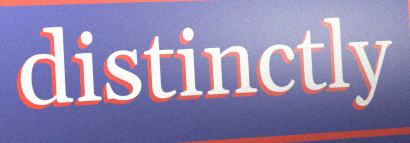
distinctly